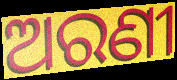
ଅରଣୀ